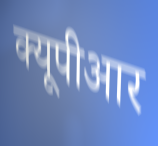
क्यूपीआर